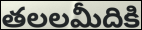
తలలమీదికి